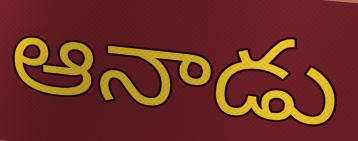
ఆనాడు